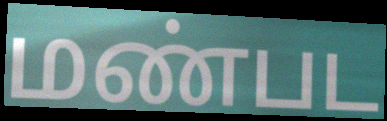
மண்பட